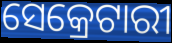
ସେକ୍ରେଟାରୀ